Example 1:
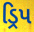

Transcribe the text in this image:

ડ્રિપ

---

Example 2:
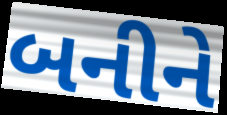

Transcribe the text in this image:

બનીને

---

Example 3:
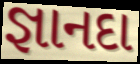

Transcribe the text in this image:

જ્ઞાનદા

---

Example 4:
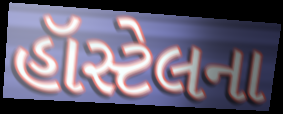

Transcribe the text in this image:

હૉસ્ટેલના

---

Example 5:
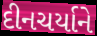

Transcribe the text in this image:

દીનચર્યાને